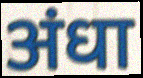
अंधा